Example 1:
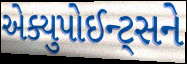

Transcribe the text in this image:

એક્યુપોઈન્ટ્સને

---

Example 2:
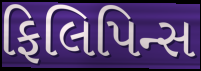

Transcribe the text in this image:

ફિલિપિન્સ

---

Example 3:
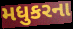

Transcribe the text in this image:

મધુકરના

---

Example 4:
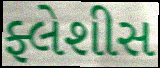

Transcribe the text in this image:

ફ્લેશીસ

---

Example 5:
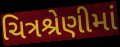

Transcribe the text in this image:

ચિત્રશ્રેણીમાં